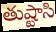
తుష్టాసి